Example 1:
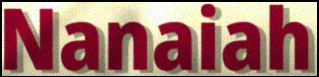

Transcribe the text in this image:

Nanaiah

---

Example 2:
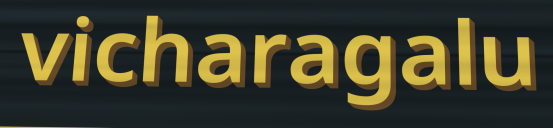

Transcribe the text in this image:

vicharagalu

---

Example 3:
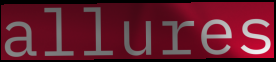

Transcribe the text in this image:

allures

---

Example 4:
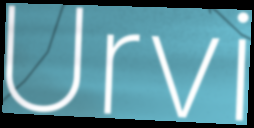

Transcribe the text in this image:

Urvi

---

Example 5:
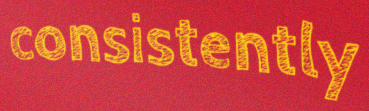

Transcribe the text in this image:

consistently